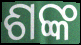
ଶଙ୍କ